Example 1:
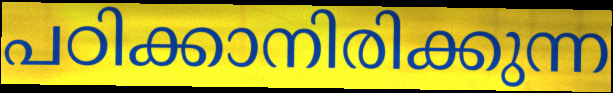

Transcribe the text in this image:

പഠിക്കാനിരിക്കുന്ന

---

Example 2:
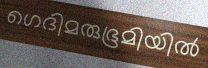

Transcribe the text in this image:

ഗെദിമരുഭൂമിയിൽ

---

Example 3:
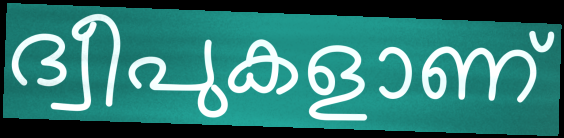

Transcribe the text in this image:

ദ്വീപുകളാണ്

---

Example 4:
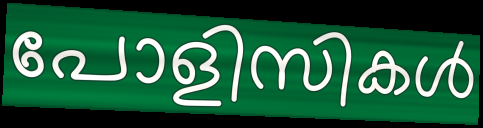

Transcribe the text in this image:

പോളിസികൾ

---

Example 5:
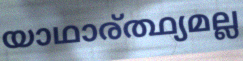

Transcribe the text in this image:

യാഥാര്ത്ഥ്യമല്ല